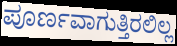
ಪೂರ್ಣವಾಗುತ್ತಿರಲಿಲ್ಲ